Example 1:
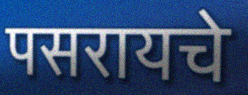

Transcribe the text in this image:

पसरायचे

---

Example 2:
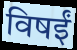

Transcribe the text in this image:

विषईं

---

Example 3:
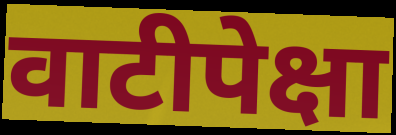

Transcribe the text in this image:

वाटीपेक्षा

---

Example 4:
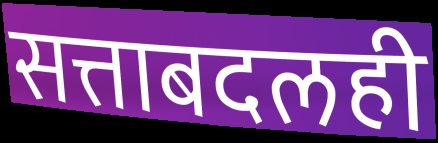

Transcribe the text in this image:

सत्ताबदलही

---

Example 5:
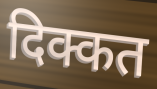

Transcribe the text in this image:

दिक्कत